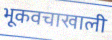
भूकवचाखाली